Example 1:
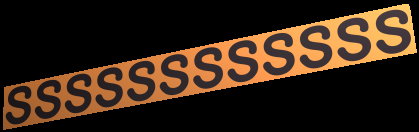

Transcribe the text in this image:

ssssssssssss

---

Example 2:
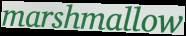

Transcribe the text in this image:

marshmallow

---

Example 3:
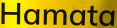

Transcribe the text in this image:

Hamata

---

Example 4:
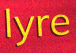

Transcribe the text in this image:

Iyre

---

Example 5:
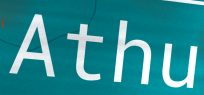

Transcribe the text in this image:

Athu